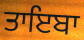
ਤਾਇਬਾ